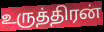
உருத்திரன்